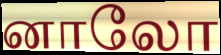
னாலோ